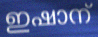
ഇഷാന്